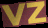
vz